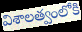
విశాలత్వంలోకి